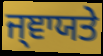
ਜ੍ਞਾਯਤੇ